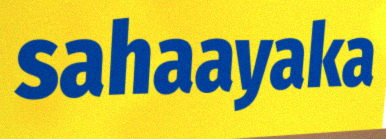
sahaayaka